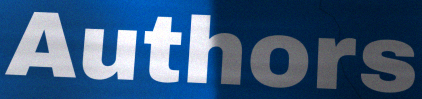
Authors